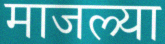
माजल्या